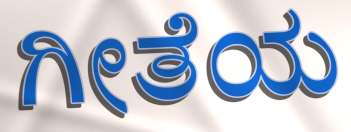
ಗೀತೆಯ